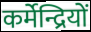
कर्मेन्द्रियों